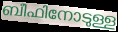
ബീഫിനോടുള്ള